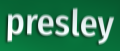
presley